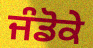
ਜੰਡੋਕੇ